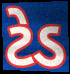
ટેડ